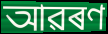
আৱৰণ